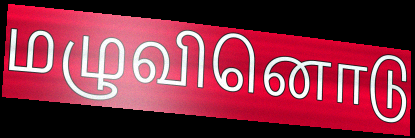
மழுவினொடு